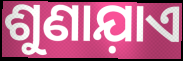
ଶୁଣାଯ଼ାଏ